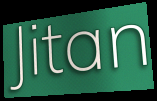
Jitan